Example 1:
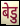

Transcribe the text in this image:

बेडु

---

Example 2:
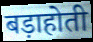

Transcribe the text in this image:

बड़ाहोती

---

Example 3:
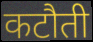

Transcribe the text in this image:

कटौती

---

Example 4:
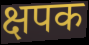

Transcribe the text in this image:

क्षपक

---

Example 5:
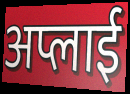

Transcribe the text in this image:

अप्‍लाई